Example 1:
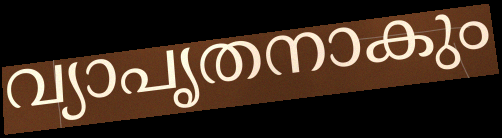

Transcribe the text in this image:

വ്യാപൃതനാകും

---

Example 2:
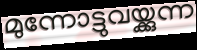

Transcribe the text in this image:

മുന്നോട്ടുവയ്ക്കുന്ന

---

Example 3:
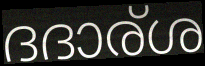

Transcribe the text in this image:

ദദാര്ശ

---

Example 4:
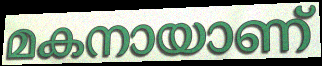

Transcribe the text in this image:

മകനായാണ്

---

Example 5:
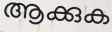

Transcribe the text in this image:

ആക്കുക